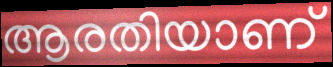
ആരതിയാണ്